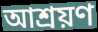
আশ্রয়ণ